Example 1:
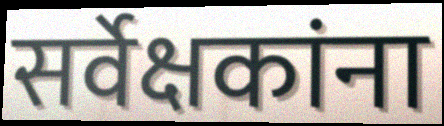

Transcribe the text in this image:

सर्वेक्षकांना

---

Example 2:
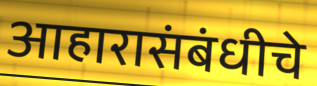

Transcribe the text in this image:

आहारासंबंधीचे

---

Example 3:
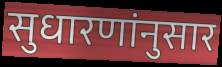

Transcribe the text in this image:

सुधारणांनुसार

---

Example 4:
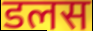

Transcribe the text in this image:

डलस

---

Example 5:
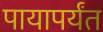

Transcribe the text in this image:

पायापर्यंत